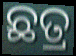
ଛତ୍ର